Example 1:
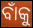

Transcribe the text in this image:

ବାଁକୁ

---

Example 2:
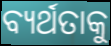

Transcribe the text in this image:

ବ୍ୟର୍ଥତାକୁ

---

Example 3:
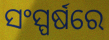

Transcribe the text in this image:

ସଂସ୍ପର୍ଷରେ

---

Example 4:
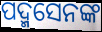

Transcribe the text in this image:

ପଦ୍ମସେନଙ୍କ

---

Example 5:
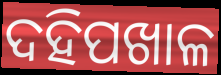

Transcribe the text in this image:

ଦହିପଖାଳ